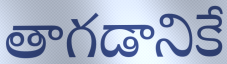
తాగడానికే